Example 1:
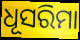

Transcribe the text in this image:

ଧୂସରିମା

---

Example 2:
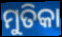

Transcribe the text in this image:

ମୁତିକା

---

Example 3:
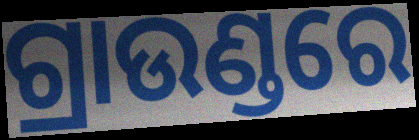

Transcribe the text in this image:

ଗ୍ରାଉଣ୍ଡରେ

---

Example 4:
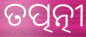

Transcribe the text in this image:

ତତ୍ପତ୍ନୀ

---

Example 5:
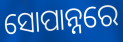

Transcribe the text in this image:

ସୋପାନ୍ନରେ